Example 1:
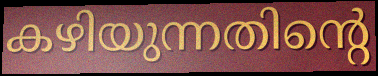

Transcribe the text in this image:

കഴിയുന്നതിന്റെ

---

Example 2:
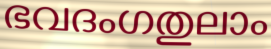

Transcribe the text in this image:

ഭവദംഗതുലാം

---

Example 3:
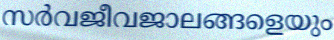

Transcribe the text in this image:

സർവജീവജാലങ്ങളെയും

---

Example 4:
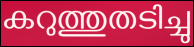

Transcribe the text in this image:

കറുത്തുതടിച്ചു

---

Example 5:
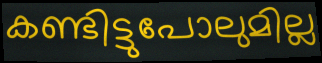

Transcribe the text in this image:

കണ്ടിട്ടുപോലുമില്ല